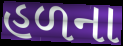
હળના